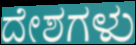
ದೇಶಗಳು